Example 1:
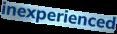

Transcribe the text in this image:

inexperienced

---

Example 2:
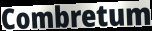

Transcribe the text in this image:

Combretum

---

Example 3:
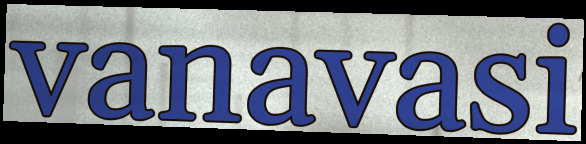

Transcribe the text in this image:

vanavasi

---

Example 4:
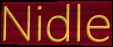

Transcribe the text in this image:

Nidle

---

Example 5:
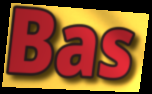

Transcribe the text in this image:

Bas